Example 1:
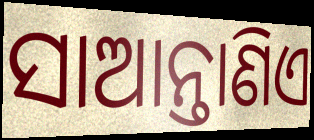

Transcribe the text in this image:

ସାଆନ୍ତାଣିଏ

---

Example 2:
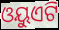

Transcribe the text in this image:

ଓୟୁଏଟି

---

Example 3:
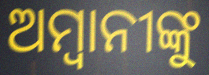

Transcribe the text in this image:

ଅମ୍ବାନୀଙ୍କୁ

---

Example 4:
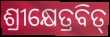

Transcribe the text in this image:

ଶ୍ରୀକ୍ଷେତ୍ରବିତ୍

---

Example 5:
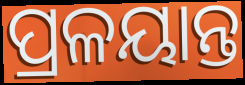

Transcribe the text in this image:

ପ୍ରଳୟାନ୍ତ